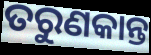
ତରୁଣକାନ୍ତ